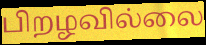
பிறழவில்லை